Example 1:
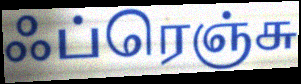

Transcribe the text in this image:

ஃப்ரெஞ்சு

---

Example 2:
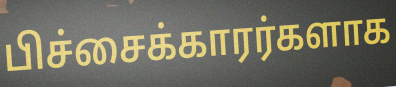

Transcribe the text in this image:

பிச்சைக்காரர்களாக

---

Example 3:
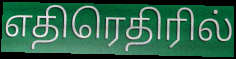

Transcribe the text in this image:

எதிரெதிரில்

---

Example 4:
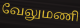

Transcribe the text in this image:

வேலுமணி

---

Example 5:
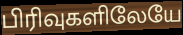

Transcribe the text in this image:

பிரிவுகளிலேயே